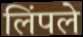
लिंपले